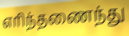
எரிந்தணைந்து